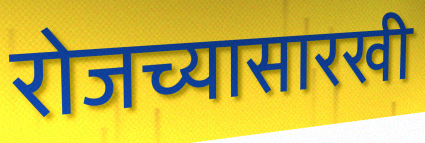
रोजच्यासारखी